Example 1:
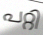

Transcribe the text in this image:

പറ്റി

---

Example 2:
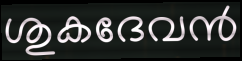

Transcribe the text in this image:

ശുകദേവൻ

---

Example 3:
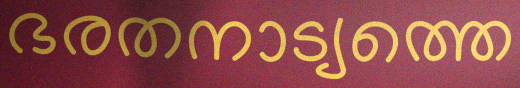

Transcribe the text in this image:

ഭരതനാട്യത്തെ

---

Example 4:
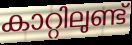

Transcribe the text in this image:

കാറ്റിലുണ്ട്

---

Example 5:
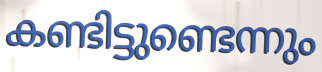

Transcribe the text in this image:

കണ്ടിട്ടുണ്ടെന്നും